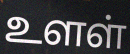
உளள்